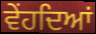
ਵੇਂਹਦਿਆਂ